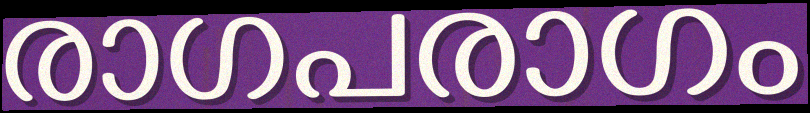
രാഗപരാഗം